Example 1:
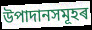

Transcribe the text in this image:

উপাদানসমূহৰ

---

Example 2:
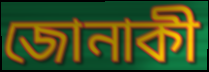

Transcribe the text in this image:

জোনাকী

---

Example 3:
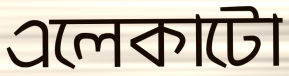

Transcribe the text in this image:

এলেকাটো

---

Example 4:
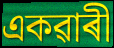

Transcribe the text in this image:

একৱাৰী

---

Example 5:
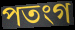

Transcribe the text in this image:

পতংগ